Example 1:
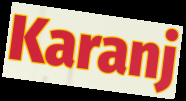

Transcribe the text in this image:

Karanj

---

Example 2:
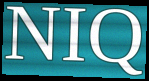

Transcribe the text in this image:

NIQ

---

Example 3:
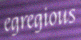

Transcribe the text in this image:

egregious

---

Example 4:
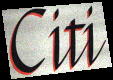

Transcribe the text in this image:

Citi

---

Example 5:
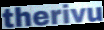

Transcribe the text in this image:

therivu